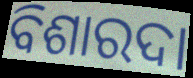
ବିଶାରଦା